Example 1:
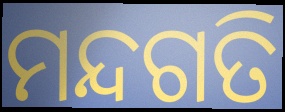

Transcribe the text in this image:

ମନ୍ଦଗତି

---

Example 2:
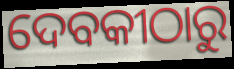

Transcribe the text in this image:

ଦେବକୀଠାରୁ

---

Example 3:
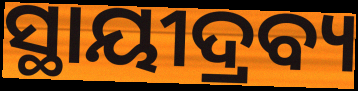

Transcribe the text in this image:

ସ୍ଥାୟୀଦ୍ରବ୍ୟ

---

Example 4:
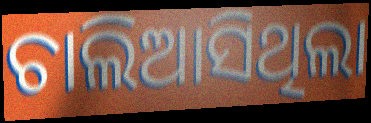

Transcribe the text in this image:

ଚାଲିଆସିଥିଲା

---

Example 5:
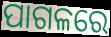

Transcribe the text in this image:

ପାଗଳରେ